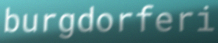
burgdorferi